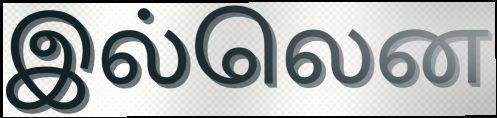
இல்லென